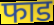
फाड